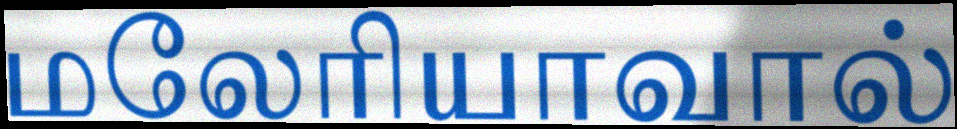
மலேரியாவால்